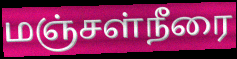
மஞ்சள்நீரை